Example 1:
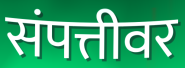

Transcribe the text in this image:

संपत्तीवर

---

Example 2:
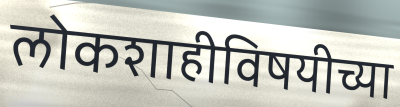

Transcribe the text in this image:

लोकशाहीविषयीच्या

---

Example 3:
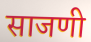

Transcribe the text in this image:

साजणी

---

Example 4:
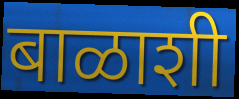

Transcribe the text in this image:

बाळाशी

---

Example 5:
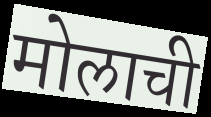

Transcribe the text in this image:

मोलाची